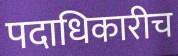
पदाधिकारीच